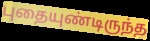
புதையுண்டிருந்த